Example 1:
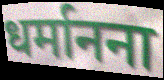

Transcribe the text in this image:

धर्मानना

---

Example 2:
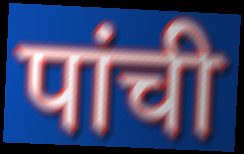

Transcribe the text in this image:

पांची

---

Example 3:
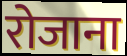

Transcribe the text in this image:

रोजाना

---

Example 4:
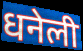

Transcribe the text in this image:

धनेली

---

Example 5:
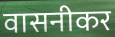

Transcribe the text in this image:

वासनीकर